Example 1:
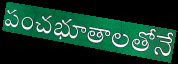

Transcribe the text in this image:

పంచభూతాలతోనే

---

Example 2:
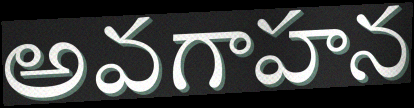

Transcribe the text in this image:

అవగాహన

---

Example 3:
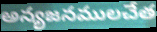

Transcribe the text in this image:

అన్యజనములచేత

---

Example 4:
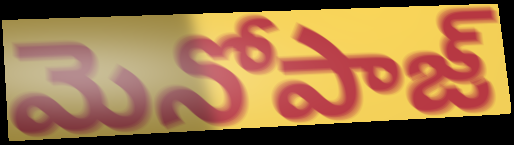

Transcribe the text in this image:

మెనోపాజ్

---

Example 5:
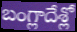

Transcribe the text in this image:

బంగ్లాదేశ్లో